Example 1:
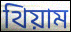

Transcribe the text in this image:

থিয়াম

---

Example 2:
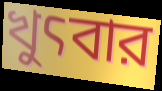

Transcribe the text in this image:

খুৎবার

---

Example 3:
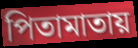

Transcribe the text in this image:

পিতামাতায়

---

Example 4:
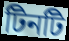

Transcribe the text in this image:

টিনটি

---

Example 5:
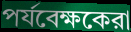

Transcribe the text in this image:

পর্যবেক্ষকেরা